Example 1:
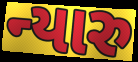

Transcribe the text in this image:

ન્યારુ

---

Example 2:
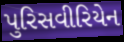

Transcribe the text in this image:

પુરિસવીરિયેન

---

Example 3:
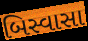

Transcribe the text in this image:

બિસ્વાસા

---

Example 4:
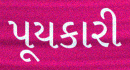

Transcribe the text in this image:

પૂયકારી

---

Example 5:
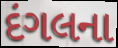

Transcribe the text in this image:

દંગલના